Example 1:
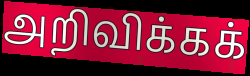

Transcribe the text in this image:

அறிவிக்கக்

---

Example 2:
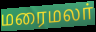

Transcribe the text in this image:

மரைமலர்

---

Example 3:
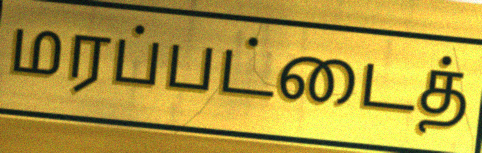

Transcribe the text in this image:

மரப்பட்டைத்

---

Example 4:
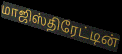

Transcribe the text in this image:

மாஜிஸ்திரேட்டின்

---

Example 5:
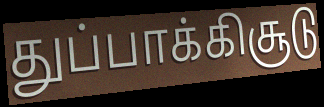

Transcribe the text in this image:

துப்பாக்கிசூடு